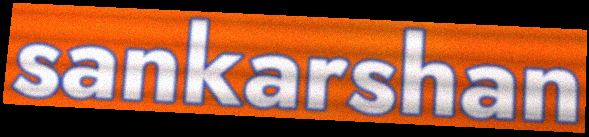
sankarshan